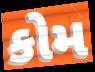
કોમ